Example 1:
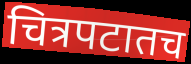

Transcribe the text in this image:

चित्रपटातच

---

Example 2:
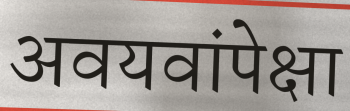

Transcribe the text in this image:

अवयवांपेक्षा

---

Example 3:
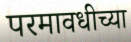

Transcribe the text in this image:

परमावधीच्या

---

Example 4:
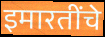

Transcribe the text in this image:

इमारतींचे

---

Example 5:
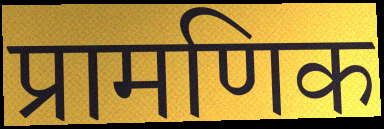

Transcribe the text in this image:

प्रामणिक